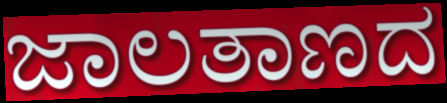
ಜಾಲತಾಣದ